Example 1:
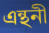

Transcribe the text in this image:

এন্থনী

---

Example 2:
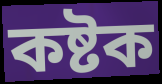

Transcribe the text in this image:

কষ্টক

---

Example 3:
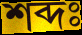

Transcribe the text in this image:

শব্দঃ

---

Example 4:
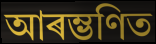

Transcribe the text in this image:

আৰম্ভণিত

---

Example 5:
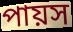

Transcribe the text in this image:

পায়স